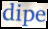
dipe